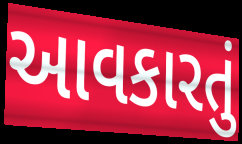
આવકારતું